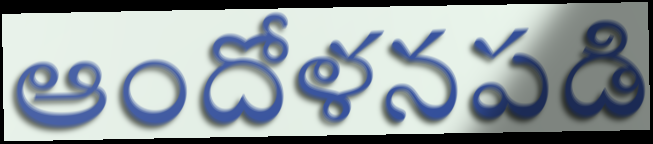
ఆందోళనపడి